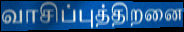
வாசிப்புத்திறனை